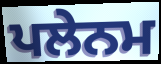
ਪਲੇਨਮ